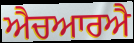
ਐਚਆਰਐ